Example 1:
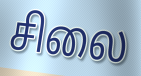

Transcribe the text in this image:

சிலை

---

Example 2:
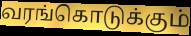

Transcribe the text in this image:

வரங்கொடுக்கும்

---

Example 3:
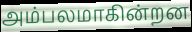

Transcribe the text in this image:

அம்பலமாகின்றன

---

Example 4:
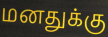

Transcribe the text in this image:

மனதுக்கு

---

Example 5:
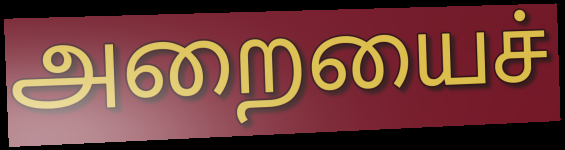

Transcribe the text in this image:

அறையைச்